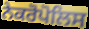
ਨੇਕਰੋਪੋਲਿਸ